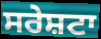
ਸਰੇਸ਼ਟਾ